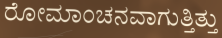
ರೋಮಾಂಚನವಾಗುತ್ತಿತ್ತು